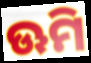
ଊମି